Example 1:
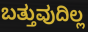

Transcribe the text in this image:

ಬತ್ತುವುದಿಲ್ಲ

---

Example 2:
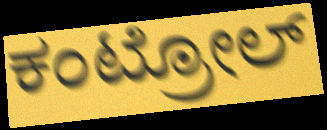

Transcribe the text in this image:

ಕಂಟ್ರೋಲ್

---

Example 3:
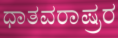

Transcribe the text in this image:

ಧಾತವರಾಷ್ರರ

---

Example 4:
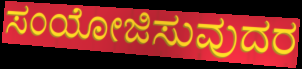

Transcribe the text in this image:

ಸಂಯೋಜಿಸುವುದರ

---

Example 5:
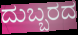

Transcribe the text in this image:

ದುಬ್ಬರದ